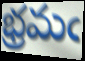
భ్రమఁ